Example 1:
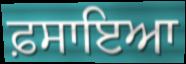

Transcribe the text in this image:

ਫ਼ਸਾਇਆ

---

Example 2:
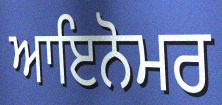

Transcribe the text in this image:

ਆਇਨੋਮਰ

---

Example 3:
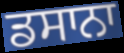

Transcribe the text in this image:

ਡਸਾਨਾ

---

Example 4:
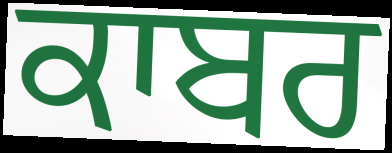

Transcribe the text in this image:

ਕਾਬਰ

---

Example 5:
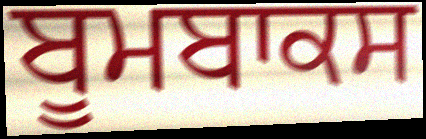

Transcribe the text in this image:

ਬੂਮਬਾਕਸ